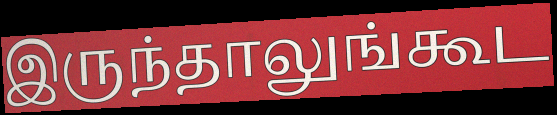
இருந்தாலுங்கூட